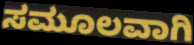
ಸಮೂಲವಾಗಿ